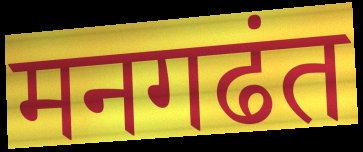
मनगढंत